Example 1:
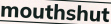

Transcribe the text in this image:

mouthshut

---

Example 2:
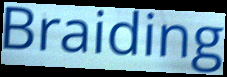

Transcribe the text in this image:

Braiding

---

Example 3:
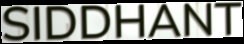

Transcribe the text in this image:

SIDDHANT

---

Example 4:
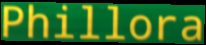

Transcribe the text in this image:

Phillora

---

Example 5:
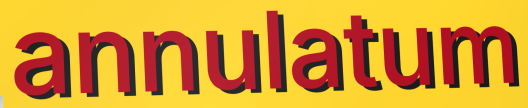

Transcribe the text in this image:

annulatum